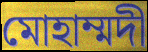
মোহাম্মদী